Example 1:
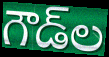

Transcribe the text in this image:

గౌడ్‌ల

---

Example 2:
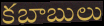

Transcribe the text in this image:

కబాబులు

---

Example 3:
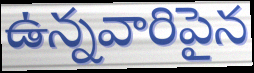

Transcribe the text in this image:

ఉన్నవారిపైన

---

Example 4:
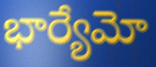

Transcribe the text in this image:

భార్యేమో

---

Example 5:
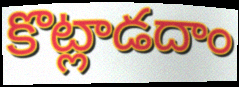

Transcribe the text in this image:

కొట్లాడదాం